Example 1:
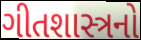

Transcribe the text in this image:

ગીતશાસ્ત્રનો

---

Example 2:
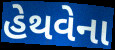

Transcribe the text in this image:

હેથવેના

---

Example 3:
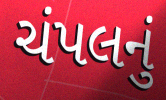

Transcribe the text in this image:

ચંપલનું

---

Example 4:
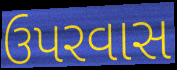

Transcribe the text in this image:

ઉપરવાસ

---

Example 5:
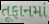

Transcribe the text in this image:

તૂફાનમાં